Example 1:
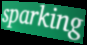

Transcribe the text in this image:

sparking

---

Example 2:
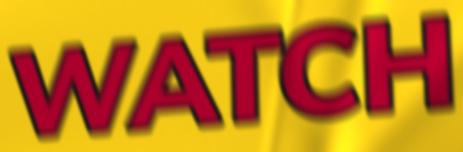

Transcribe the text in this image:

WATCH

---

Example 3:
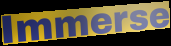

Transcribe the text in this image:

Immerse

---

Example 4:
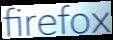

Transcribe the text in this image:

firefox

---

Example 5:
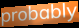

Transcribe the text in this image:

probably